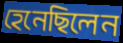
হেনেছিলেন